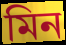
মিন